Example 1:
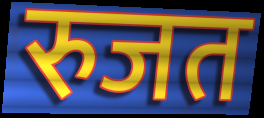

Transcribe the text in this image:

रुजत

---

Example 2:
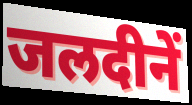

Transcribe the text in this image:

जलदीनें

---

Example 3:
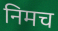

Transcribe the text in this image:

निमच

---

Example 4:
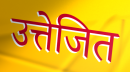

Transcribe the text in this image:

उत्तेजित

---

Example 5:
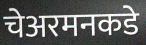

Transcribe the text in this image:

चेअरमनकडे